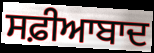
ਸਫ਼ੀਆਬਾਦ